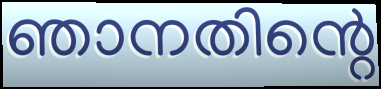
ഞാനതിന്റെ